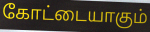
கோட்டையாகும்